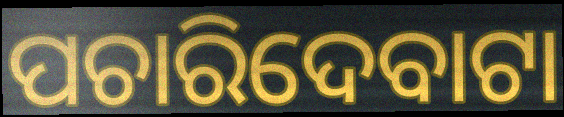
ପଚାରିଦେବାଟା